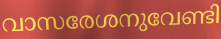
വാസരേശനുവേണ്ടി